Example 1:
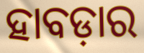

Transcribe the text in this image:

ହାବଡ଼ାର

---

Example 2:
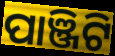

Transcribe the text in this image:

ପାଞ୍ଜିଟି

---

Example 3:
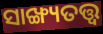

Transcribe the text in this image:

ସାଙ୍ଖ୍ୟତତ୍ତ୍ଵ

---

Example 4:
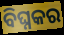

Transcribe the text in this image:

ବିଘ୍ନକର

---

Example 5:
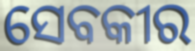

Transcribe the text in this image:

ସେବକୀର